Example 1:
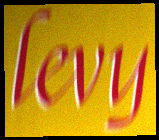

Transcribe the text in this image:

levy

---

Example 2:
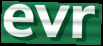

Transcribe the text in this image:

evr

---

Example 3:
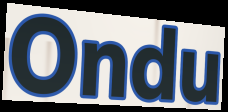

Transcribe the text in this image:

Ondu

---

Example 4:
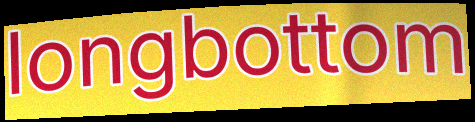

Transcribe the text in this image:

longbottom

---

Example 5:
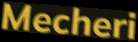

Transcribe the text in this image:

Mecheri